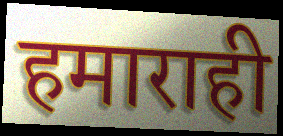
हमाराही